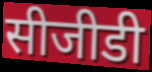
सीजीडी